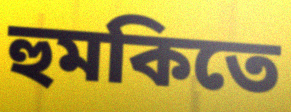
হুমকিতে